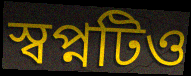
স্বপ্নটিও